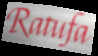
Ratufa